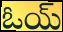
ఓయ్